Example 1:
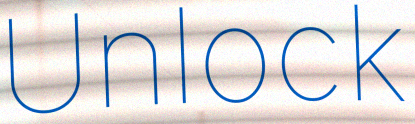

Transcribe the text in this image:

Unlock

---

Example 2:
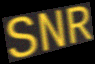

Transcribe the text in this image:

SNR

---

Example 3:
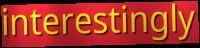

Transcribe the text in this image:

interestingly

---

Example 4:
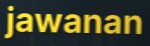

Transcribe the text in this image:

jawanan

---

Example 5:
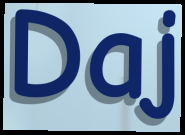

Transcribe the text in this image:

Daj